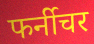
फर्नीचर